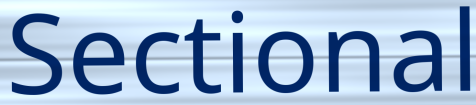
Sectional